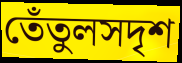
তেঁতুলসদৃশ